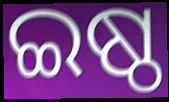
ଇଷ୍ଠ